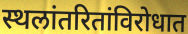
स्थलांतरितांविरोधात